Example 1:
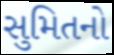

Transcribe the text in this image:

સુમિતનો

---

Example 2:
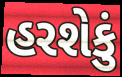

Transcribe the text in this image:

હરશેકું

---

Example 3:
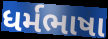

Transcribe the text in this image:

ધર્મભાષા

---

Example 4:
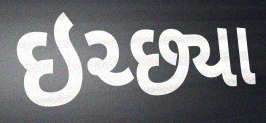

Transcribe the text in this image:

ઇચ્છ્યા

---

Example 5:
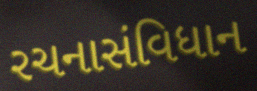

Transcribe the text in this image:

રચનાસંવિધાન